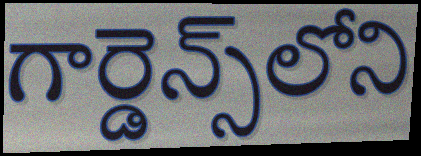
గార్డెన్స్‌లోని